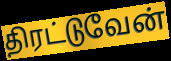
திரட்டுவேன்